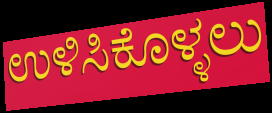
ಉಳಿಸಿಕೊಳ್ಳಲು